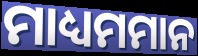
ମାଧ୍ୟମମାନ